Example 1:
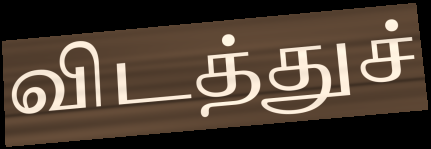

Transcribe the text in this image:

விடத்துச்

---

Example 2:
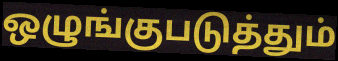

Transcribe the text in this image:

ஒழுங்குபடுத்தும்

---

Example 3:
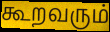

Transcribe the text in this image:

கூறவரும்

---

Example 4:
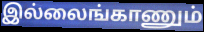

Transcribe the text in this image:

இல்லைங்காணும்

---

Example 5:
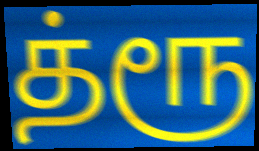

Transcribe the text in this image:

த்ரூ